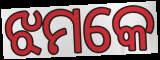
ଝମକେ